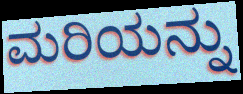
ಮರಿಯನ್ನು